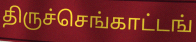
திருச்செங்காட்டங்